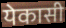
येकासी